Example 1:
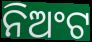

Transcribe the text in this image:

ନିଅଂଟ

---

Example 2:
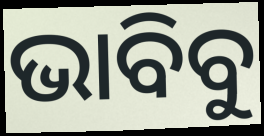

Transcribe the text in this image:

ଭାବିବୁ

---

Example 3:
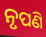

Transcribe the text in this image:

ନୃପଣି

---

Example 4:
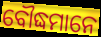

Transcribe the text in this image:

ବୌଦ୍ଧମାନେ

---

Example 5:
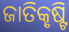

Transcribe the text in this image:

ଜାତିକୃଷ୍ଟି